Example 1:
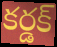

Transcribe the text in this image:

కర్డక్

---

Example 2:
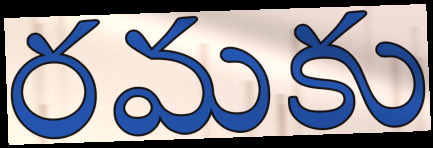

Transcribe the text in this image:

రమకు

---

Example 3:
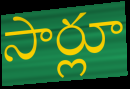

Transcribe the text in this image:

సార్లూ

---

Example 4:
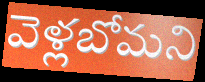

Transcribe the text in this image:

వెళ్లబోమని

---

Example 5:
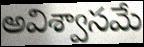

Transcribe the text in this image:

అవిశ్వాసమే